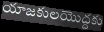
యాజకులయొద్దకు